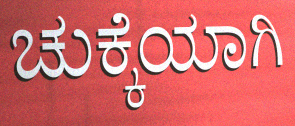
ಚುಕ್ಕೆಯಾಗಿ